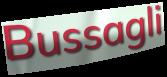
Bussagli